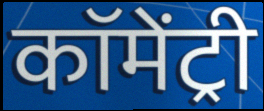
कॉमेंट्री